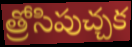
త్రోసిపుచ్చక